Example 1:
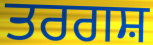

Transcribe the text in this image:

ਤਰਗਸ਼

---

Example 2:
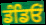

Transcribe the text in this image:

ਡੰਡਿਓਂ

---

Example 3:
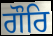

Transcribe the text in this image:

ਗੌਰਿ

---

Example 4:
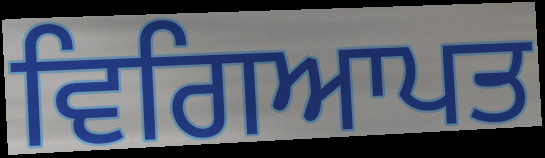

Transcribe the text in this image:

ਵਿਗਿਆਪਤ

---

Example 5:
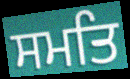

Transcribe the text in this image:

ਸਮਤਿ